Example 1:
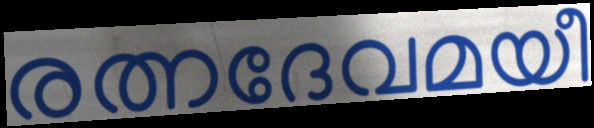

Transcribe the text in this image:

രത്നദേവമയീ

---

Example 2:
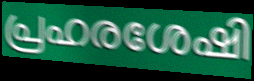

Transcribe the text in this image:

പ്രഹരശേഷി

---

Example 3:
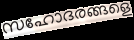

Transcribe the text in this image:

സഹോദരങ്ങളെ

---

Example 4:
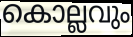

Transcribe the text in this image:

കൊല്ലവും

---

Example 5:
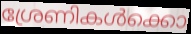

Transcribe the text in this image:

ശ്രേണികൾക്കൊ